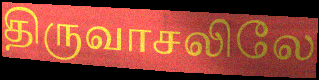
திருவாசலிலே